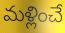
మళ్లించే